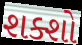
શક્શો